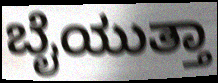
ಬೈಯುತ್ತಾ